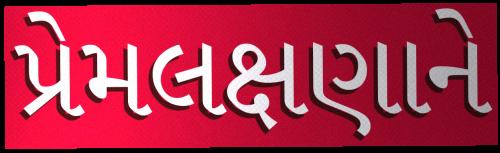
પ્રેમલક્ષણાને